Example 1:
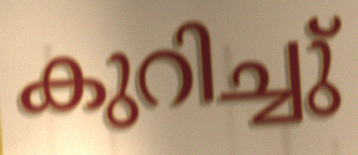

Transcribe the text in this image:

കുറിച്ചു്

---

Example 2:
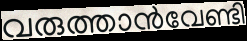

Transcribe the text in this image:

വരുത്താൻവേണ്ടി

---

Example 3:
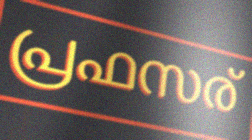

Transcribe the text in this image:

പ്രഫസര്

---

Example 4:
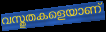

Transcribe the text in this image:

വസ്തുതകളെയാണ്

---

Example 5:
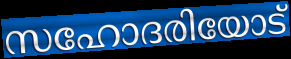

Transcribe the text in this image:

സഹോദരിയോട്